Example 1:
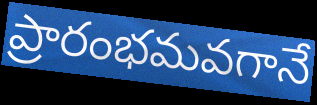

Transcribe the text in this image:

ప్రారంభమవగానే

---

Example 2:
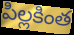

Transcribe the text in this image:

పిల్లకింత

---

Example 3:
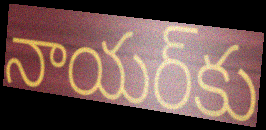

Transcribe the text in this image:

నాయర్‌కు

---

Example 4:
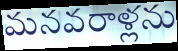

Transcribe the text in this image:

మనవరాళ్లను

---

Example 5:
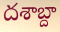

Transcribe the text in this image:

దశాబ్దా